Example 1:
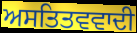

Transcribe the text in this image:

ਅਸਤਿਤਵਵਾਦੀ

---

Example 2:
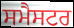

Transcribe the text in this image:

ਸਮੈਸਟਰ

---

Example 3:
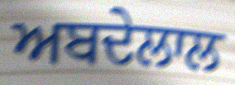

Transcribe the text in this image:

ਅਬਦੇਲਾਲ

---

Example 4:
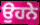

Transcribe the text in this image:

ਉਹਨੇ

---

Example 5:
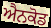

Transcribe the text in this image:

ਐਨਕੋਡ